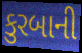
કુરબાની